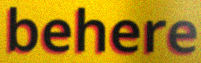
behere